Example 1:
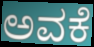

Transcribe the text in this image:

ಅವಕೆ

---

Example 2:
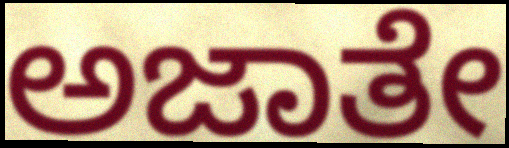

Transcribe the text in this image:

ಅಜಾತೇ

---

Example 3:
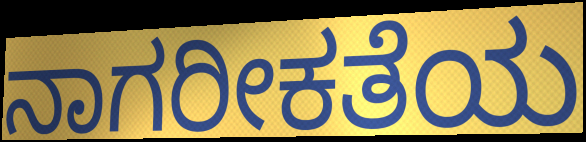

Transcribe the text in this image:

ನಾಗರೀಕತೆಯ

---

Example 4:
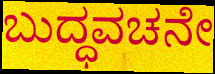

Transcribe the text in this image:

ಬುದ್ಧವಚನೇ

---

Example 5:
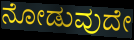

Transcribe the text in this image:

ನೋಡುವುದೇ